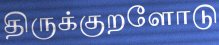
திருக்குறளோடு